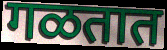
गळतात